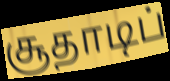
சூதாடிப்